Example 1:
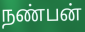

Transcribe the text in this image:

நண்பன்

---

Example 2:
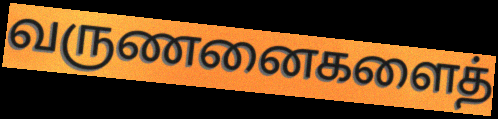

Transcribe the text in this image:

வருணனைகளைத்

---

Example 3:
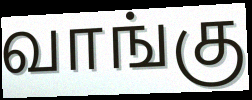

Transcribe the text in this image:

வாங்கு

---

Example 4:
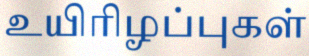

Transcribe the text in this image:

உயிரிழப்புகள்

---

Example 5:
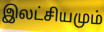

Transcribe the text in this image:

இலட்சியமும்